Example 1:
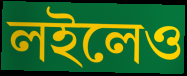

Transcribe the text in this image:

লইলেও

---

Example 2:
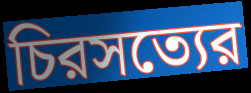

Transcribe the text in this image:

চিরসত্যের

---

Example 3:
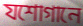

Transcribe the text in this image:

যশোগানে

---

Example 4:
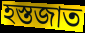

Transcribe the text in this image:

হস্তজাত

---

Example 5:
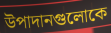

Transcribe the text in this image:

উপাদানগুলোকে